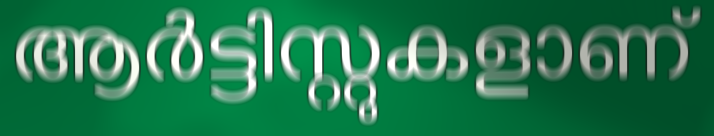
ആർട്ടിസ്റ്റുകളാണ്